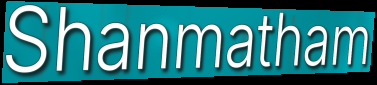
Shanmatham